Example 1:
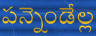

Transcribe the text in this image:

పన్నెండేల్ల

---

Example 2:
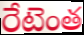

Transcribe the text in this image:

రేటెంత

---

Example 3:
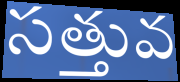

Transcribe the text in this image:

సత్తువ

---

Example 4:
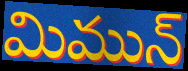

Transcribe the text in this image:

మిమున్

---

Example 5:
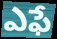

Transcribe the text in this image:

ఎఫే